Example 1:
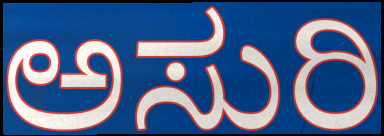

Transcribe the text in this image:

ಅಸುರಿ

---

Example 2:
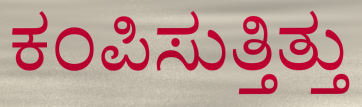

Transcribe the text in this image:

ಕಂಪಿಸುತ್ತಿತ್ತು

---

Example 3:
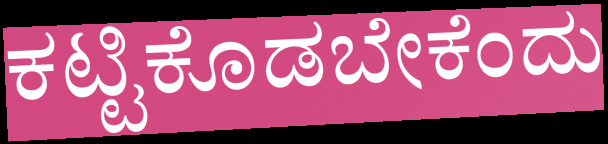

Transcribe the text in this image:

ಕಟ್ಟಿಕೊಡಬೇಕೆಂದು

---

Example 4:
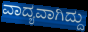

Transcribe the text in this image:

ವಾದ್ಯವಾಗಿದ್ದು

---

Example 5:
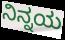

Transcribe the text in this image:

ನಿನ್ನಯ